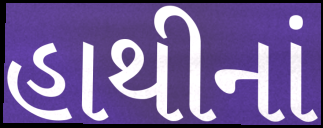
હાથીનાં